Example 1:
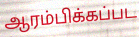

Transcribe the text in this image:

ஆரம்பிக்கப்பட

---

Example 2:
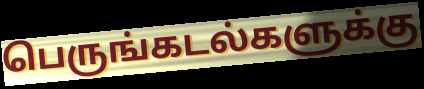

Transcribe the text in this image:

பெருங்கடல்களுக்கு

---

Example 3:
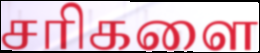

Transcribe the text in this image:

சரிகளை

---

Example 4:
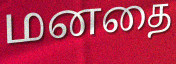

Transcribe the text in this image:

மனதை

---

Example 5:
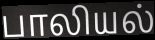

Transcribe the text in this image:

பாலியல்